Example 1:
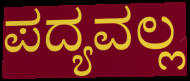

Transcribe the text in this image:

ಪದ್ಯವಲ್ಲ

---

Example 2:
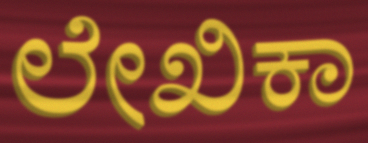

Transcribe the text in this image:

ಲೇಖಿಕಾ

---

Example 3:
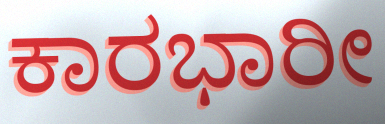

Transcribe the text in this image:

ಕಾರಭಾರೀ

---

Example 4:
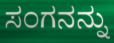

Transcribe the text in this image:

ಸಂಗನನ್ನು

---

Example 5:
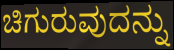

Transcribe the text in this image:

ಚಿಗುರುವುದನ್ನು